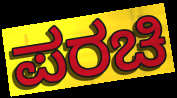
ಪರಚಿ